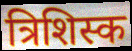
त्रिशिस्क